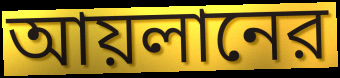
আয়লানের